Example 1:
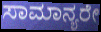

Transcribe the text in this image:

ಸಾಮಾನ್ಯರೇ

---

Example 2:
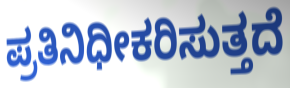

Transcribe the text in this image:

ಪ್ರತಿನಿಧೀಕರಿಸುತ್ತದೆ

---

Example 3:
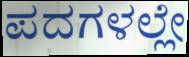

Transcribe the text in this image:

ಪದಗಳಲ್ಲೇ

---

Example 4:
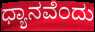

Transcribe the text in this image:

ಧ್ಯಾನವೆಂದು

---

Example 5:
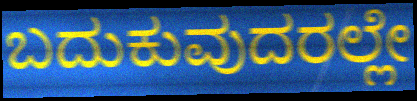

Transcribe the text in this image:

ಬದುಕುವುದರಲ್ಲೇ